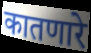
कातणारे